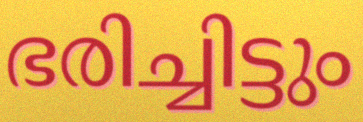
ഭരിച്ചിട്ടും